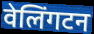
वेलिंगटन